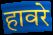
हावरे